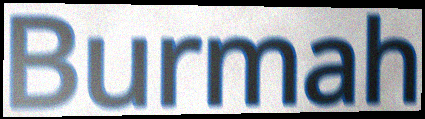
Burmah